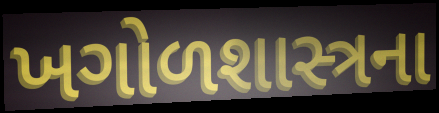
ખગોળશાસ્ત્રના